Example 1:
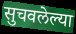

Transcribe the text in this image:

सुचवलेल्या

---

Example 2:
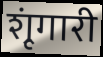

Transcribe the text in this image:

श्रृंगारी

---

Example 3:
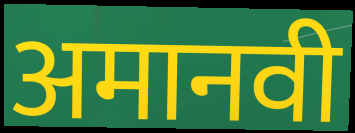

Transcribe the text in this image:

अमानवी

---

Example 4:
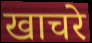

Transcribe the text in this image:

खाचरे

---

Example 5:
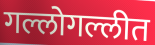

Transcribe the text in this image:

गल्लोगल्लीत